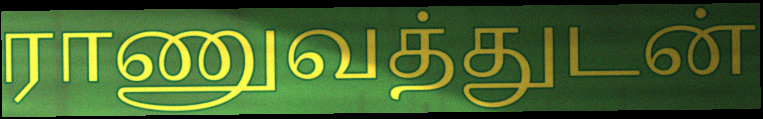
ராணுவத்துடன்